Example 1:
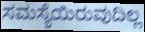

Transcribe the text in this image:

ಸಮಸ್ಯೆಯಿರುವುದಿಲ್ಲ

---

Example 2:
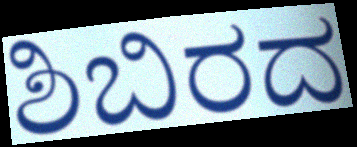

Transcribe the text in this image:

ಶಿಬಿರದ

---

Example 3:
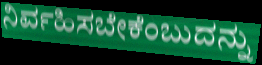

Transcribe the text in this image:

ನಿರ್ವಹಿಸಬೇಕೆಂಬುದನ್ನು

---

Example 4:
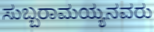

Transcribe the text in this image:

ಸುಬ್ಬರಾಮಯ್ಯನವರು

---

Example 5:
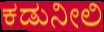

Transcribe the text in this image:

ಕಡುನೀಲಿ